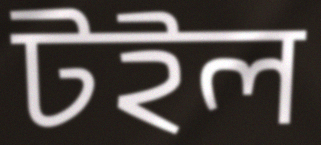
টইল